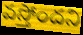
వస్తోందని